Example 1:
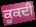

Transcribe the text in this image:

ਕੂਕਦੀ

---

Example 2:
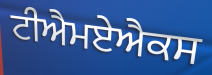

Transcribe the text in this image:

ਟੀਐਮਏਐਕਸ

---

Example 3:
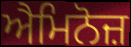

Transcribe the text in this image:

ਐਮਿਨੋਜ਼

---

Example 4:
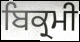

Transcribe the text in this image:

ਬਿਕ੍ਰਮੀ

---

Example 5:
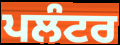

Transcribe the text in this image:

ਪਲੰਟਰ